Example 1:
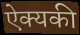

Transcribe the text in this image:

ऐक्यकी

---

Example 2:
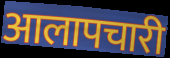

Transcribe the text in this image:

आलापचारी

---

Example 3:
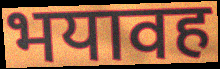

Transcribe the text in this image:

भयावह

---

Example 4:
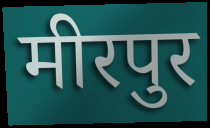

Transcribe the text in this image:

मीरपुर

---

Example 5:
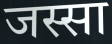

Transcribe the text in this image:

जस्सा